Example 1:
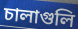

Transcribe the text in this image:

চালাগুলি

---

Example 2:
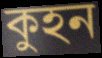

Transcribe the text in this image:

কুহন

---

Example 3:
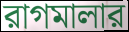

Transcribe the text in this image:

রাগমালার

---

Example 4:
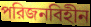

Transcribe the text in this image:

পরিজনবিহীন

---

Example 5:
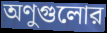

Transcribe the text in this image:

অণুগুলোর